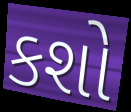
કશો